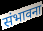
संभावना